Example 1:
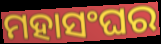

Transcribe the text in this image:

ମହାସଂଘର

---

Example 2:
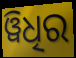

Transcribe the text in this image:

ୱିଧିର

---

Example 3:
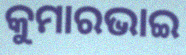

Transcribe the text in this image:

କୁମାରଭାଇ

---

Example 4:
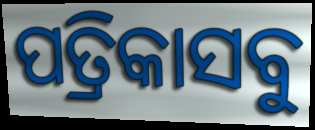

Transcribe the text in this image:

ପତ୍ରିକାସବୁ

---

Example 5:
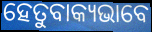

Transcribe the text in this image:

ହେତୁବାକ୍ୟଭାବେ